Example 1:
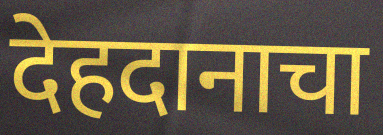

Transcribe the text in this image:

देहदानाचा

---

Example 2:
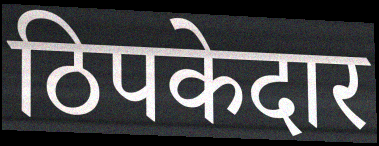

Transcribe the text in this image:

ठिपकेदार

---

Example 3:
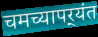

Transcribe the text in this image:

चमच्यापर्यंत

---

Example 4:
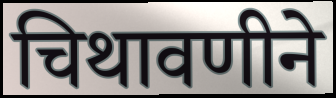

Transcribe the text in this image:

चिथावणीने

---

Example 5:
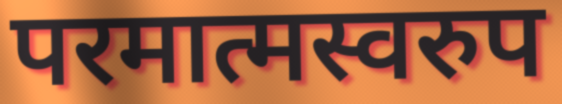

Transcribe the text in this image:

परमात्मस्वरुप